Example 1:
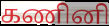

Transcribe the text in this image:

கணினி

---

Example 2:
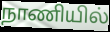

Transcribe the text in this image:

நாணியில்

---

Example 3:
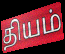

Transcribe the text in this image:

தியம்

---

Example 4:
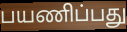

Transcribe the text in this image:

பயணிப்பது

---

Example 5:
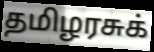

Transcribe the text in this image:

தமிழரசுக்